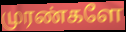
முரண்களே